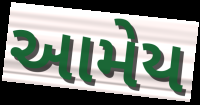
આમેય